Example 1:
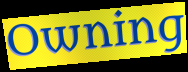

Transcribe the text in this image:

Owning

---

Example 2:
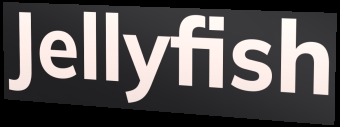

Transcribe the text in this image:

Jellyfish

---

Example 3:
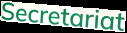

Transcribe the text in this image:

Secretariat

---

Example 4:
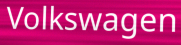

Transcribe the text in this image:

Volkswagen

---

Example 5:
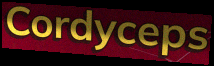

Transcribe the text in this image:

Cordyceps